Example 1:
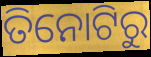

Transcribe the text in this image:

ତିନୋଟିରୁ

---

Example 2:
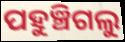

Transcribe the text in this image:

ପହୁଞ୍ଚିଗଲୁ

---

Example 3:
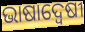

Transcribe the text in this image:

ଭାଷାଦ୍ଵେଷୀ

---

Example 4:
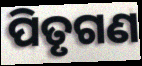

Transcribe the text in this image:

ପିତୃଗଣ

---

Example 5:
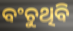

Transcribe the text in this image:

ବଂଚୁଥିବି